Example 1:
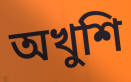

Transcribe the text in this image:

অখুশি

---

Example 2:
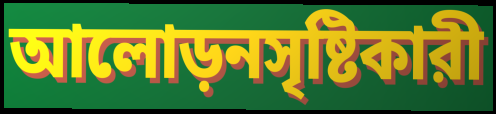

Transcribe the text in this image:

আলোড়নসৃষ্টিকারী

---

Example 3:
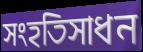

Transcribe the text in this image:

সংহতিসাধন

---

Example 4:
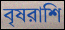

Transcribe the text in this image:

বৃষরাশি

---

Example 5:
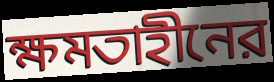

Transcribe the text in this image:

ক্ষমতাহীনের